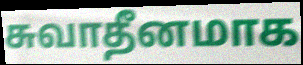
சுவாதீனமாக